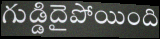
గుడ్డిదైపోయింది